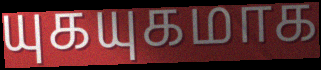
யுகயுகமாக